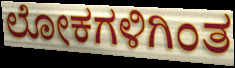
ಲೋಕಗಳಿಗಿಂತ